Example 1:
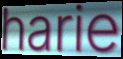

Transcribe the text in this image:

harie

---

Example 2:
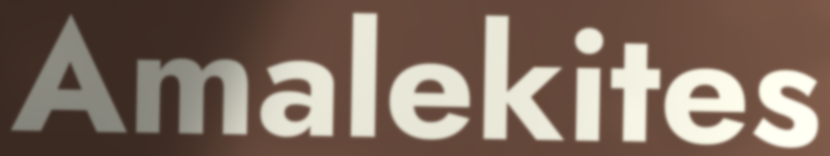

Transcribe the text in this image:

Amalekites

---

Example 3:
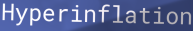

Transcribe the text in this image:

Hyperinflation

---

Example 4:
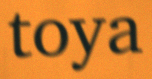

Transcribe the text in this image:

toya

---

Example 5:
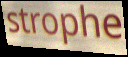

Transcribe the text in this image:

strophe